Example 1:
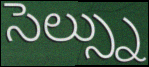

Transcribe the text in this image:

సెల్స్ను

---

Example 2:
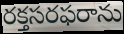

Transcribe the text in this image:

రక్తసరఫరాను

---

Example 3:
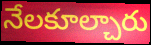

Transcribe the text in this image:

నేలకూల్చారు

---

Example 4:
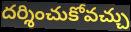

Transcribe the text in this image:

దర్శించుకోవచ్చు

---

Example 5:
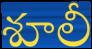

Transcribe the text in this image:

శూలీ